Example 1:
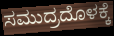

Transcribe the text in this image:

ಸಮುದ್ರದೊಳಕ್ಕೆ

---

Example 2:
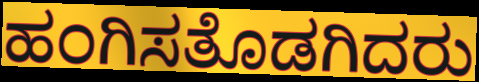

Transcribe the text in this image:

ಹಂಗಿಸತೊಡಗಿದರು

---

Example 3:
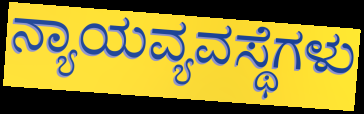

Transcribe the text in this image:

ನ್ಯಾಯವ್ಯವಸ್ಥೆಗಳು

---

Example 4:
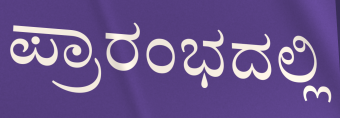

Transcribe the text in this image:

ಪ್ರಾರಂಭದಲ್ಲಿ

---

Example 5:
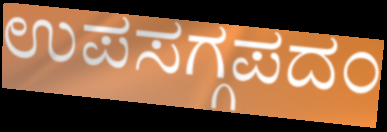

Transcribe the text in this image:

ಉಪಸಗ್ಗಪದಂ